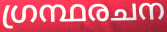
ഗ്രന്ഥരചന